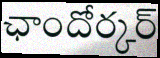
ఛాందోర్కర్